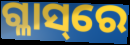
ଗ୍ଳାସ୍‌ରେ